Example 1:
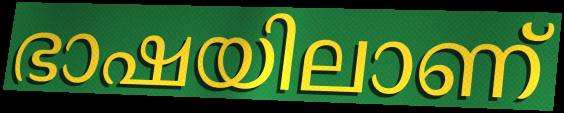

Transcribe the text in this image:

ഭാഷയിലാണ്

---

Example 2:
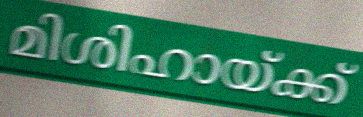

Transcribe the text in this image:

മിശിഹായ്ക്ക്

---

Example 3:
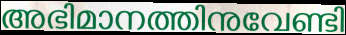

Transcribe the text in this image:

അഭിമാനത്തിനുവേണ്ടി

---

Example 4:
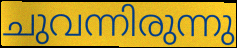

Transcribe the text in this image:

ചുവന്നിരുന്നു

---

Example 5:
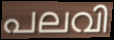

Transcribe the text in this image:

പലവി